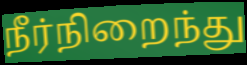
நீர்நிறைந்து